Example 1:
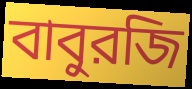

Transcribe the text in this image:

বাবুরজি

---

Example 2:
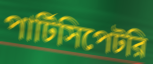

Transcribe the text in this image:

পার্টিসিপেটরি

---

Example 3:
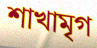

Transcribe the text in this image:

শাখামৃগ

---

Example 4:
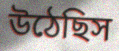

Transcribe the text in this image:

উঠেছিস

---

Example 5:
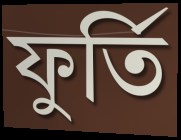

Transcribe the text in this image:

ফুর্তি